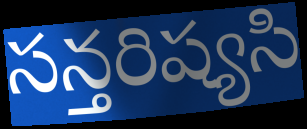
సన్తరిష్యసి